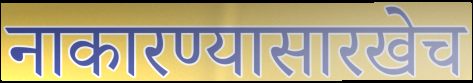
नाकारण्यासारखेच